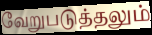
வேறுபடுத்தலும்